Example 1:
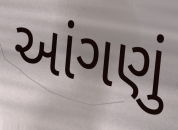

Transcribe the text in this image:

આંગણું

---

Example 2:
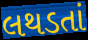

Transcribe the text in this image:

લથડતાં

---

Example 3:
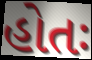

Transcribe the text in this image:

હોતઃ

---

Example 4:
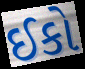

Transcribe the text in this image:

ઈકો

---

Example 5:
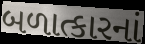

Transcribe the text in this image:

બળાત્કારનાં